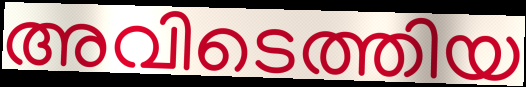
അവിടെത്തിയ